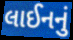
લાઈનનું